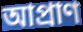
আপ্ৰাণ